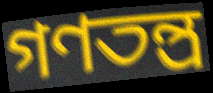
গণতন্ত্ৰ